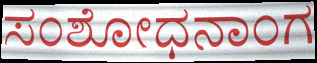
ಸಂಶೋಧನಾಂಗ